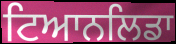
ਟਿਆਨਲਿਡਾ